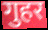
गुहर